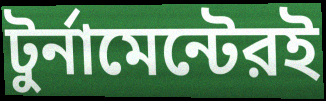
টুর্নামেন্টেরই